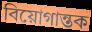
বিয়োগান্তক